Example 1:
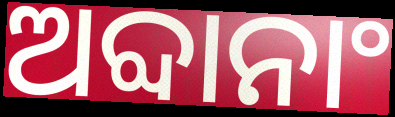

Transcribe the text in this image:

ଅବ୍ଦାନାଂ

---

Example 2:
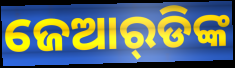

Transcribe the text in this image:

ଜେଆର୍‌ଡିଙ୍କ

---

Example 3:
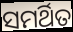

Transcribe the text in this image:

ସମର୍ଥିତ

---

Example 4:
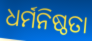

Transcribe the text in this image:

ଧର୍ମନିଷ୍ଠତା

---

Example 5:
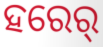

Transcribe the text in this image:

ହରେର୍